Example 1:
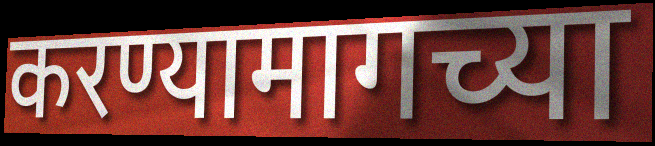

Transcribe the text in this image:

करण्यामागच्या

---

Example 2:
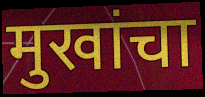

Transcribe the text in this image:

मुखांचा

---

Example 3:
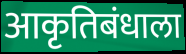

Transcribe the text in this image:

आकृतिबंधाला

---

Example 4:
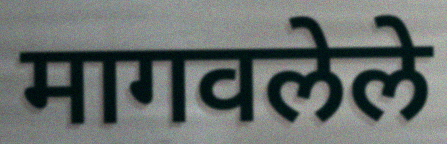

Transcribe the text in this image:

मागवलेले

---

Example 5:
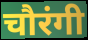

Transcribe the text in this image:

चौरंगी